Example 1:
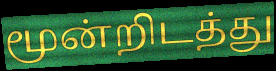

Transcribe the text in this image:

மூன்றிடத்து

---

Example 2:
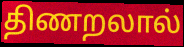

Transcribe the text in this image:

திணறலால்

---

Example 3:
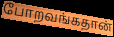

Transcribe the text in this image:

போறவங்கதான்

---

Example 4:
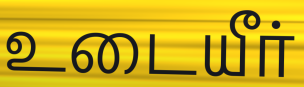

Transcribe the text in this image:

உடையீர்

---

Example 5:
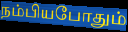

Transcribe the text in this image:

நம்பியபோதும்